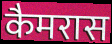
कैमरास